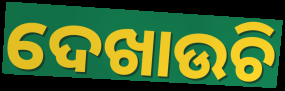
ଦେଖାଉଚି